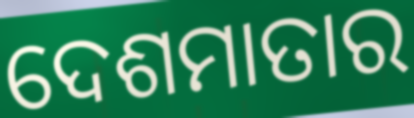
ଦେଶମାତାର